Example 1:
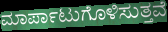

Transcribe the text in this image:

ಮಾರ್ಪಾಟುಗೊಳಿಸುತ್ತವೆ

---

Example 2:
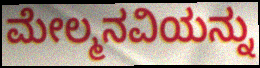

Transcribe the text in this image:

ಮೇಲ್ಮನವಿಯನ್ನು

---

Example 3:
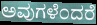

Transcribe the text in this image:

ಅವುಗಳೆಂದರೆ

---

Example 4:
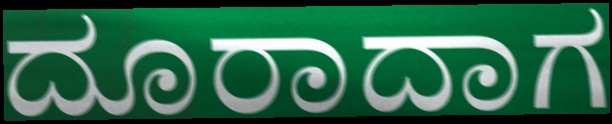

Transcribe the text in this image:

ದೂರಾದಾಗ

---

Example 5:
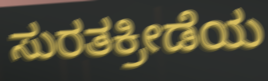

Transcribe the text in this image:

ಸುರತಕ್ರೀಡೆಯ